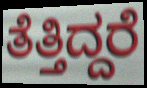
ತೆತ್ತಿದ್ದರೆ